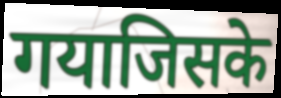
गयाजिसके